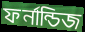
ফর্নান্ডিজ